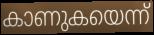
കാണുകയെന്ന്